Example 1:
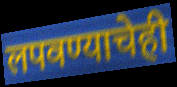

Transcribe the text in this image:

लपवण्याचेही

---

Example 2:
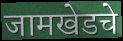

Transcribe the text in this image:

जामखेडचे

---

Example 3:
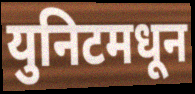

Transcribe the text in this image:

युनिटमधून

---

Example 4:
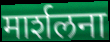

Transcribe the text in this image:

मार्शलना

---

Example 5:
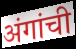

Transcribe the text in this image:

अंगांची